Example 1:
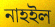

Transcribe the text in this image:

নাহইল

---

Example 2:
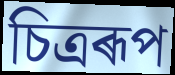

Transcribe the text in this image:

চিত্ৰৰূপ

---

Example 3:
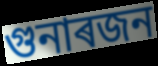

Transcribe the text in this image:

গুনাৰজন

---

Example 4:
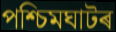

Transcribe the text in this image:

পশ্চিমঘাটৰ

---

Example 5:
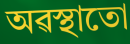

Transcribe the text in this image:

অৱস্থাতো